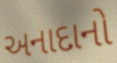
અનાદાનો